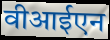
वीआईएन